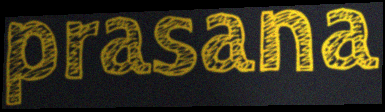
prasana